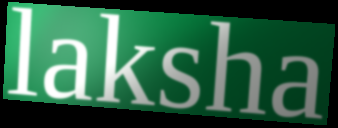
laksha